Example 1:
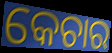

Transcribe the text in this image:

କେଚାର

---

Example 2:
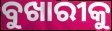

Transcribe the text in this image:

ବୁଖାରୀକୁ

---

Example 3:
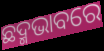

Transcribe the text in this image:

ଛଦ୍ମଭାବରେ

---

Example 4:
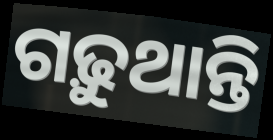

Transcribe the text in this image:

ଗଢ଼ୁଥାନ୍ତି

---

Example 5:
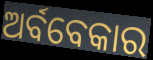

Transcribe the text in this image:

ଅର୍ବବେକାର